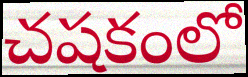
చషకంలో